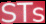
STs